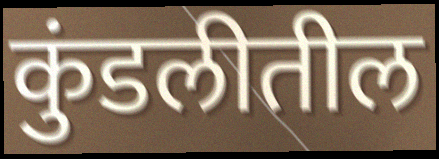
कुंडलीतील